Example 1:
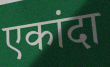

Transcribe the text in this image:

एकांदा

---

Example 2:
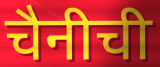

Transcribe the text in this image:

चैनीची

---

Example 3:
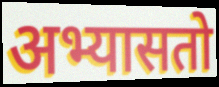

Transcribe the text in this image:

अभ्यासतो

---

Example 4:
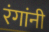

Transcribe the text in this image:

रंगांनी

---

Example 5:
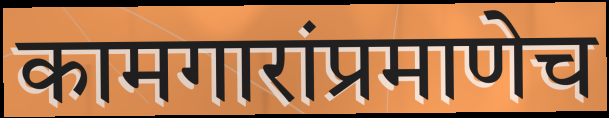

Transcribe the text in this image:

कामगारांप्रमाणेच